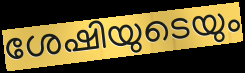
ശേഷിയുടെയും